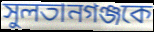
সুলতানগঞ্জকে